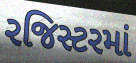
રજિસ્ટરમાં